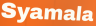
Syamala